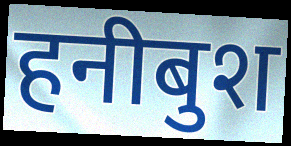
हनीबुश